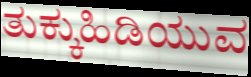
ತುಕ್ಕುಹಿಡಿಯುವ